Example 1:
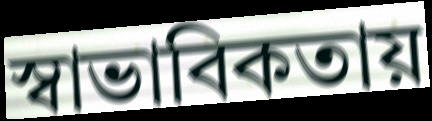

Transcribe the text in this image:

স্বাভাবিকতায়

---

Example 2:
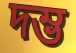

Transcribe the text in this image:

দম্ভ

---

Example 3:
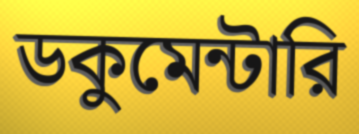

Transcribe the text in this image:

ডকুমেন্টারি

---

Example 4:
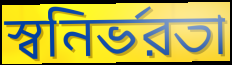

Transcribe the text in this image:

স্বনির্ভরতা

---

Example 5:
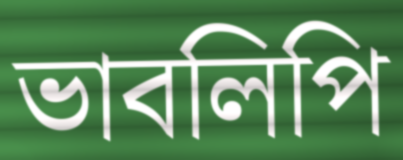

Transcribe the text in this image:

ভাবলিপি